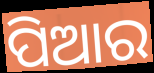
ପିଆର